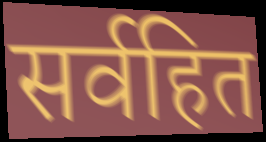
सर्वहित